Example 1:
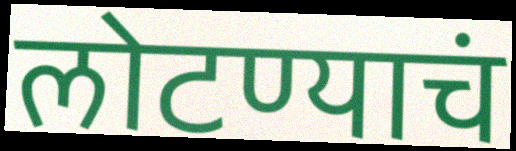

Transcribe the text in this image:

लोटण्याचं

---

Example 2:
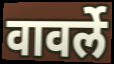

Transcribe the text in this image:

वावर्ले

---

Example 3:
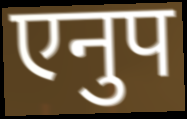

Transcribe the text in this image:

एनुप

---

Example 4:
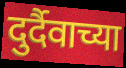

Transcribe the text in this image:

दुर्दैवाच्या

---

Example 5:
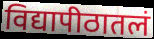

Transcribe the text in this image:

विद्यापीठातलं